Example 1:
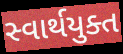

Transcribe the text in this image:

સ્વાર્થયુક્ત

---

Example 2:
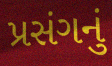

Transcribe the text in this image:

પ્રસંગનું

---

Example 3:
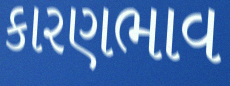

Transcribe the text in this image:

કારણભાવ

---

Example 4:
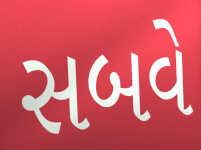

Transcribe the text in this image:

સબવે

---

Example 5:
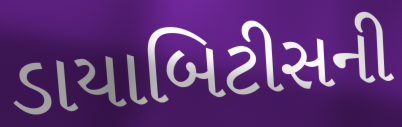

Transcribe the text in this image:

ડાયાબિટીસની